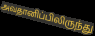
அவதானிப்பிலிருந்து